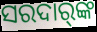
ସରଦାର୍‍ଙ୍କ